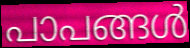
പാപങ്ങൾ